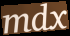
mdx